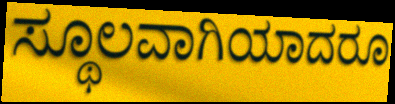
ಸ್ಥೂಲವಾಗಿಯಾದರೂ